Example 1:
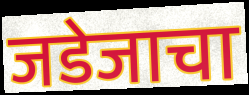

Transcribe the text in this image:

जडेजाचा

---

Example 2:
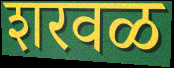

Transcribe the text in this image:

शरवळ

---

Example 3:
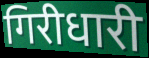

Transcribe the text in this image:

गिरीधारी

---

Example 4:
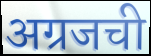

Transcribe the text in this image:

अग्रजची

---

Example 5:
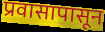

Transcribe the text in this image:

प्रवासापासून